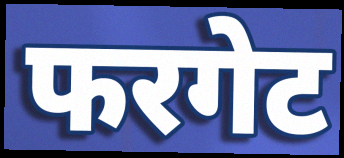
फरगेट